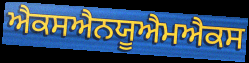
ਐਕਸਐਨਯੂਐਮਐਕਸ